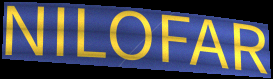
NILOFAR